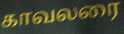
காவலரை